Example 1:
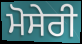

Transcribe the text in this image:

ਮੋਸੇਰੀ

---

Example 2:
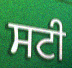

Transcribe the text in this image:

ਸਟੀ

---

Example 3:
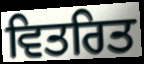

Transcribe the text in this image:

ਵਿਤਰਿਤ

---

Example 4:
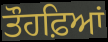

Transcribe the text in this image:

ਤੌਹਫ਼ਿਆਂ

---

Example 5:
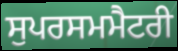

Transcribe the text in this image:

ਸੁਪਰਸਮਮੈਟਰੀ